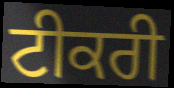
ਟੀਕਰੀ